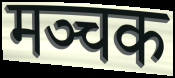
मञ्चक